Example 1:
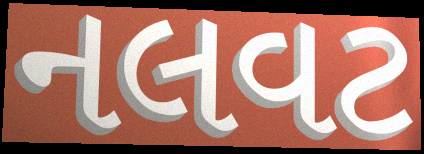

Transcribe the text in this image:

નલવટ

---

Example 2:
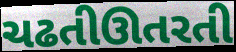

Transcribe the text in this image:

ચઢતીઊતરતી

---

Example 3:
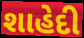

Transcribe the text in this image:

શાહેદી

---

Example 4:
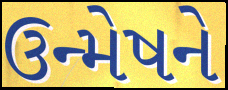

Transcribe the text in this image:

ઉન્મેષને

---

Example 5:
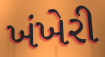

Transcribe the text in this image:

ખંખેરી